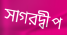
সাগরদ্বীপ